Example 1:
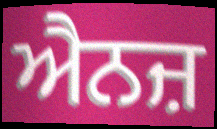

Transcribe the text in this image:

ਐਨਜ਼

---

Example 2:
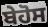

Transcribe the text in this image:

ਬੇਹੋਸ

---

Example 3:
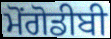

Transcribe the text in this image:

ਮੋਂਗੋਡੀਬੀ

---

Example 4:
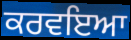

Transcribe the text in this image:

ਕਰਵਇਆ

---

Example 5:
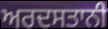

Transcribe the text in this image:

ਅਰਦਸਤਾਨੀ